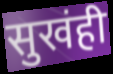
सुखंही